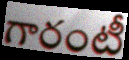
గారంటీ